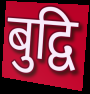
बुद्वि